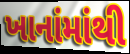
ખાનાંમાંથી